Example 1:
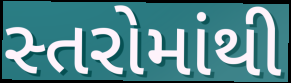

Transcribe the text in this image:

સ્તરોમાંથી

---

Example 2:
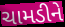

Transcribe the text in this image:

ચામડીને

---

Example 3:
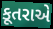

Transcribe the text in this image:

કૂતરાએ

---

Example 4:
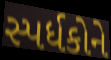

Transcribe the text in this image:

સ્પર્ધકોને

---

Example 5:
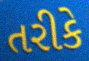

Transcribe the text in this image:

તરીકે